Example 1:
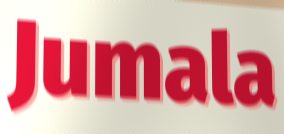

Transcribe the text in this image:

Jumala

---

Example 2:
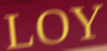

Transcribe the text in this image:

LOY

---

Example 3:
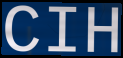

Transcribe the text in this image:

CIH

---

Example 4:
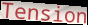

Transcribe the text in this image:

Tension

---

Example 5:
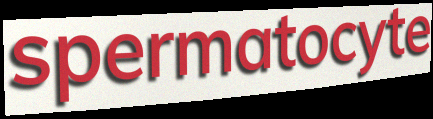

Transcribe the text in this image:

spermatocyte